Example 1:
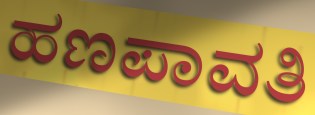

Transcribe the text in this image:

ಹಣಪಾವತಿ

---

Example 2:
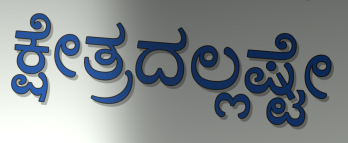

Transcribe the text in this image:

ಕ್ಷೇತ್ರದಲ್ಲಷ್ಟೇ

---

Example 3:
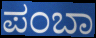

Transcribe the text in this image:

ಪಂಬಾ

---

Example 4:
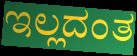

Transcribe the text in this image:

ಇಲ್ಲದಂತ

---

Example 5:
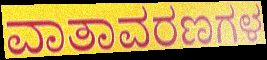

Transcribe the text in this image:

ವಾತಾವರಣಗಳ